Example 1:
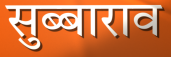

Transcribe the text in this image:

सुब्‍बाराव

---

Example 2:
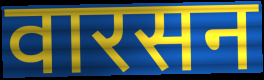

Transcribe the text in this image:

वारसन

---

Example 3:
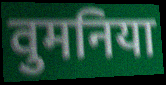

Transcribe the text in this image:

वुमनिया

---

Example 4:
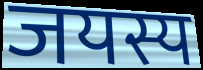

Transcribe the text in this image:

जयस्य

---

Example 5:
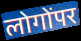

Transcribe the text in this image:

लोगोंपर